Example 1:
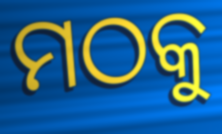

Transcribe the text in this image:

ମଠକୁ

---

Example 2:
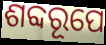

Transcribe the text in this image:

ଶବ୍ଦରୂପେ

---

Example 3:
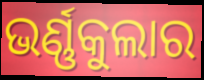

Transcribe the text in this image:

ଭର୍ଣ୍ଣକୁଲାର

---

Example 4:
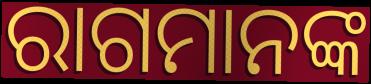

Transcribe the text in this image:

ରାଗମାନଙ୍କ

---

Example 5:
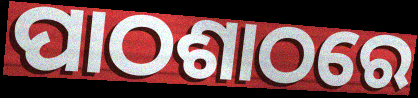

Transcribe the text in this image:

ପାଠଶାଠରେ